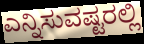
ಎನ್ನಿಸುವಷ್ಟರಲ್ಲಿ